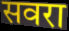
सवरा